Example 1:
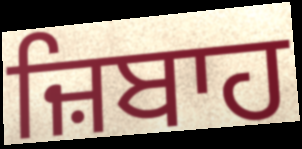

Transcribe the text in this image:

ਜ਼ਿਬਾਹ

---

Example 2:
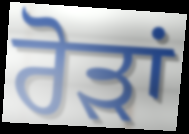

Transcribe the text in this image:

ਰੋੜਾਂ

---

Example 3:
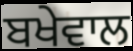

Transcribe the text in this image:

ਬਖੇਵਾਲ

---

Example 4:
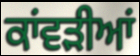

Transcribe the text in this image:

ਕਾਂਵੜੀਆਂ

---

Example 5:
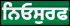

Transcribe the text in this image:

ਨਿਓਸੁਰਫ